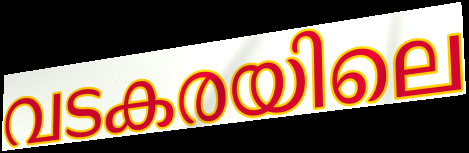
വടകരയിലെ